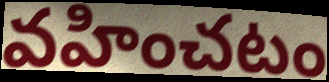
వహించటం